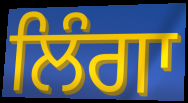
ਲਿੰਗਾ